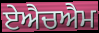
ਏਐਚਐਮ